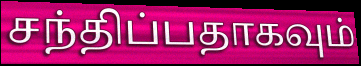
சந்திப்பதாகவும்